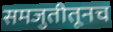
समजुतीतूनच